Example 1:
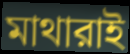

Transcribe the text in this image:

মাথারাই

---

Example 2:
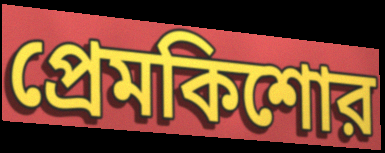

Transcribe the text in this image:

প্রেমকিশোর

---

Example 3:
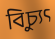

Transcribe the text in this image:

বিচ্যুৎ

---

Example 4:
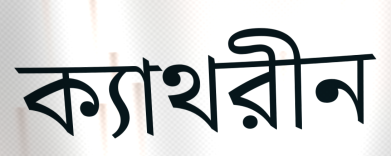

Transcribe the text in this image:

ক্যাথরীন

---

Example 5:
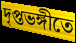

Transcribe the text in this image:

দৃপ্তভঙ্গীতে